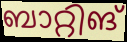
ബാറ്റിങ്